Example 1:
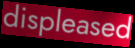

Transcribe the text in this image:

displeased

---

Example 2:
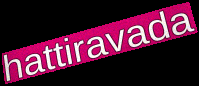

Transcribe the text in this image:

hattiravada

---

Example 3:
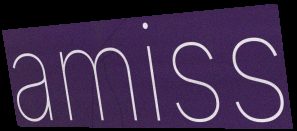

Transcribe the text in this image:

amiss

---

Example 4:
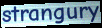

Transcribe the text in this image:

strangury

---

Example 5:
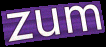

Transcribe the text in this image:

zum